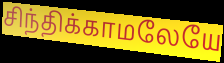
சிந்திக்காமலேயே